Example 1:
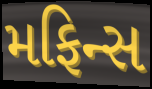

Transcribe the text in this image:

મફિન્સ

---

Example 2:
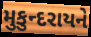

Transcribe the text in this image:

મુકુન્દરાયને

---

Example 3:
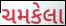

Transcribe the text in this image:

ચમકેલા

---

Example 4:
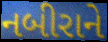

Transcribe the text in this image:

નબીરાને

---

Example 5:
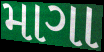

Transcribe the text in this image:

માગા